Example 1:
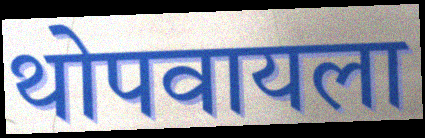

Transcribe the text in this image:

थोपवायला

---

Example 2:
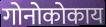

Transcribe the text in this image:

गोनोकोकाय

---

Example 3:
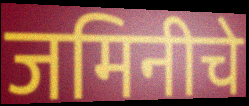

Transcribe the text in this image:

जमिनीचे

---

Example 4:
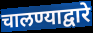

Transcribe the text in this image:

चालण्याद्वारे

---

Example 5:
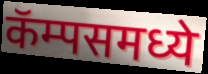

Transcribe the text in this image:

कॅम्पसमध्ये